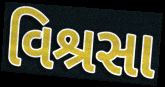
વિશ્રસા